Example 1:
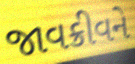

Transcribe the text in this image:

જાવક્રીવને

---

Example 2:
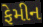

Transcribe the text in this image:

ફેમીન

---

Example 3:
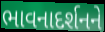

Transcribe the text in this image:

ભાવનાદર્શનને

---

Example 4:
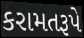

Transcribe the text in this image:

કરામતરૂપે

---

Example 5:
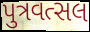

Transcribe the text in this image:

પુત્રવત્સલ